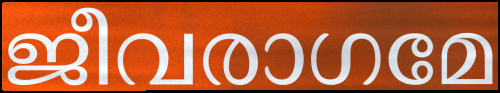
ജീവരാഗമേ